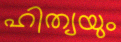
ഹിത്യയും